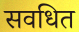
सवधित